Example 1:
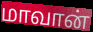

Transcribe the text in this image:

மாவான்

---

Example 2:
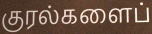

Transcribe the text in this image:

குரல்களைப்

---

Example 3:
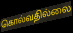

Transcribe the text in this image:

கொல்வதில்லை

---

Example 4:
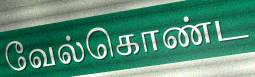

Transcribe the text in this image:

வேல்கொண்ட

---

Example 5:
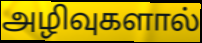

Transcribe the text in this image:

அழிவுகளால்